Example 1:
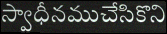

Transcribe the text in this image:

స్వాధీనముచేసికొని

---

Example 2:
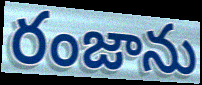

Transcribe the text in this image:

రంజాను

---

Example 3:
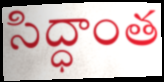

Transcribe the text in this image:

సిద్ధాంత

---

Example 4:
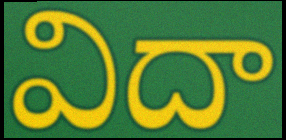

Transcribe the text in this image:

విదా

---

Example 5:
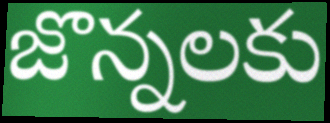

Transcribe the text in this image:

జొన్నలకు